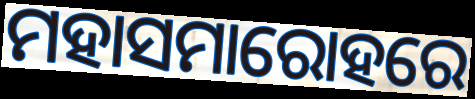
ମହାସମାରୋହରେ